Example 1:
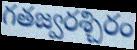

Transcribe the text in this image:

గతజ్వరశ్చిరం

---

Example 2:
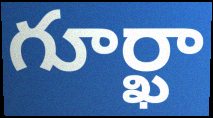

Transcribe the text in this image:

గూర్ఖా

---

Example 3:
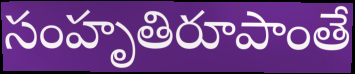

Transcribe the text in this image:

సంహృతిరూపాంతే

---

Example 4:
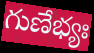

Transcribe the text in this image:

గుణేభ్యః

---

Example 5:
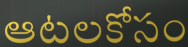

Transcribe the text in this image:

ఆటలకోసం